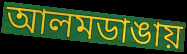
আলমডাঙায়